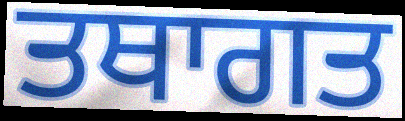
ਤਥਾਗਤ